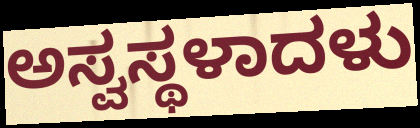
ಅಸ್ವಸ್ಥಳಾದಳು